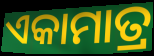
ଏକାମାତ୍ର